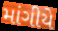
માંગીયે